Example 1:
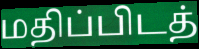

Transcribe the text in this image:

மதிப்பிடத்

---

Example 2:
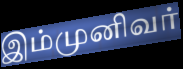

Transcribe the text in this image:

இம்முனிவர்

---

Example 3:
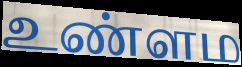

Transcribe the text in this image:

உண்ளம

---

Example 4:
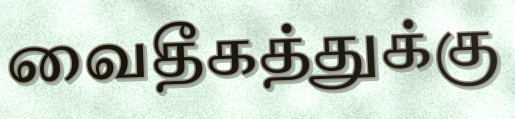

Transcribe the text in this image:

வைதீகத்துக்கு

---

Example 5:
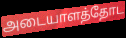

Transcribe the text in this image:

அடையாளத்தோட